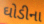
ઘોડીના